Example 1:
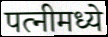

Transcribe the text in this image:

पत्नीमध्ये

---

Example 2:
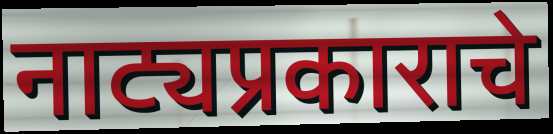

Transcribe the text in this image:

नाट्यप्रकाराचे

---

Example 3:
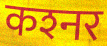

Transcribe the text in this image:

कश्‍नर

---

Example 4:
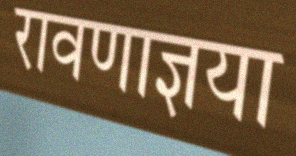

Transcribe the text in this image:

रावणाज्ञया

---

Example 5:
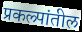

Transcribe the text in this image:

प्रकल्पांतील